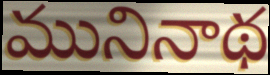
మునినాథ